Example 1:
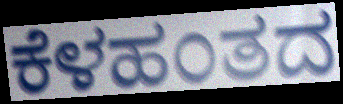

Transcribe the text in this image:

ಕೆಳಹಂತದ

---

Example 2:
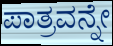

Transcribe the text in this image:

ಪಾತ್ರವನ್ನೇ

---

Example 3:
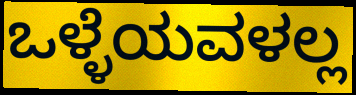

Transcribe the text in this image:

ಒಳ್ಳೆಯವಳಲ್ಲ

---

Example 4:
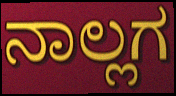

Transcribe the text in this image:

ನಾಲ್ಲಗ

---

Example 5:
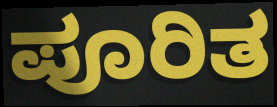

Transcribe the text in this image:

ಪೂರಿತ